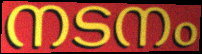
നടനം